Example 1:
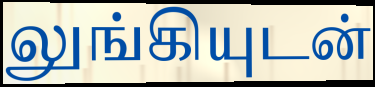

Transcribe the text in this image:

லுங்கியுடன்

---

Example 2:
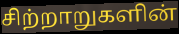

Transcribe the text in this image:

சிற்றாறுகளின்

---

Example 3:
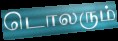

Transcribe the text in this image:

டொலரும்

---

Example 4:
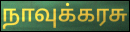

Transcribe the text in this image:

நாவுக்கரசு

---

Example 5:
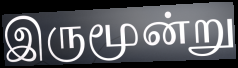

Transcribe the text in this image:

இருமூன்று